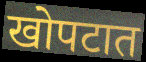
खोपटात